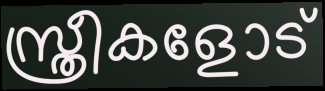
സ്ത്രീകളോട്